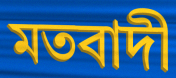
মতবাদী